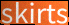
skirts